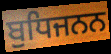
ਬੁਧਿਜਨਨ